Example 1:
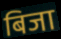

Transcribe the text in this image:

बिजा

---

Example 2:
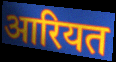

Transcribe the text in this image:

आरियत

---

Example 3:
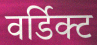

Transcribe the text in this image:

वर्डिक्ट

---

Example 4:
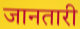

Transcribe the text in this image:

जानतारी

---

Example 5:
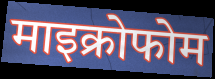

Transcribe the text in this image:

माइक्रोफोम